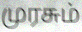
முரசும்